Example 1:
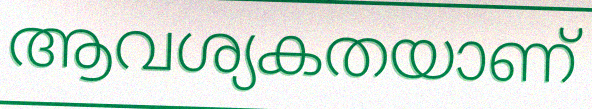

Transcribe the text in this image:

ആവശ്യകതയാണ്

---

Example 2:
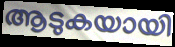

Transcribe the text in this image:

ആടുകയായി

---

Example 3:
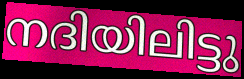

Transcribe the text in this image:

നദിയിലിട്ടു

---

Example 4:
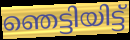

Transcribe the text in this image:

ഞെട്ടിയിട്ട്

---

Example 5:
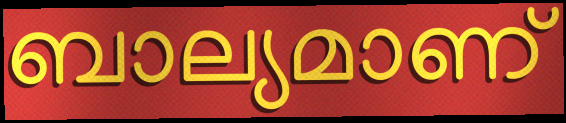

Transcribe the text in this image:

ബാല്യമാണ്